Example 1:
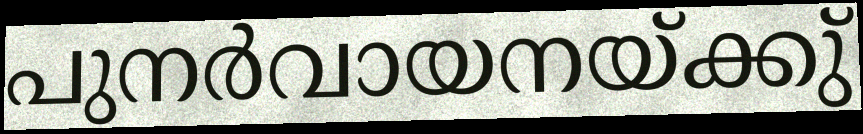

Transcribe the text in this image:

പുനർവായനയ്ക്കു്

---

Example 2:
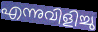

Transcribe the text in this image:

എന്നുവിളിച്ചു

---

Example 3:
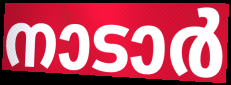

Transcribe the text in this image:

നാടാർ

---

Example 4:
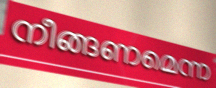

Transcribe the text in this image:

നീങ്ങണമെന്ന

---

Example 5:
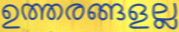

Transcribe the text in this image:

ഉത്തരങ്ങളല്ല